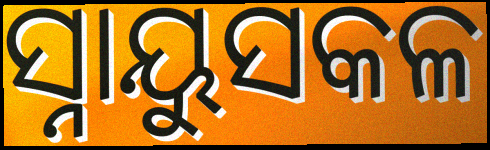
ସ୍ନାୟୁସକଳ